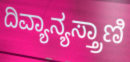
ದಿವ್ಯಾನ್ಯಸ್ತ್ರಾಣಿ